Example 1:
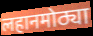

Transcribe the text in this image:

लहानमोठ्या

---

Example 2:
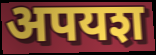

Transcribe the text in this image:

अपयश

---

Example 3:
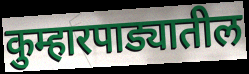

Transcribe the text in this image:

कुम्हारपाड्यातील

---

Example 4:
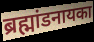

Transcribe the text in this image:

ब्रह्मांडनायका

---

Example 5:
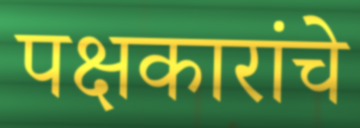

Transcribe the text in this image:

पक्षकारांचे